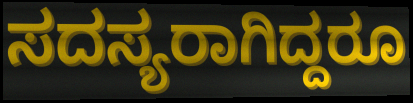
ಸದಸ್ಯರಾಗಿದ್ದರೂ